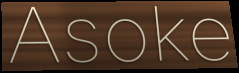
Asoke